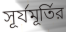
সূর্যমূর্তির